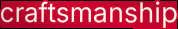
craftsmanship